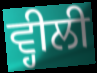
ਵ੍ਹੀਲੀ